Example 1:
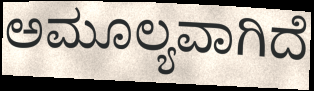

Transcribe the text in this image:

ಅಮೂಲ್ಯವಾಗಿದೆ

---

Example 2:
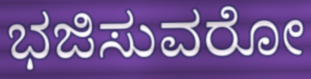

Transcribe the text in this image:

ಭಜಿಸುವರೋ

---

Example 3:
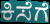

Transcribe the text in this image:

ಕಿಸೆಗೆ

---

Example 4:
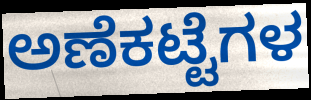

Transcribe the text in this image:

ಅಣೆಕಟ್ಟೆಗಳ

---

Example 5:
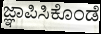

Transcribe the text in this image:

ಜ್ಞಾಪಿಸಿಕೊಂಡೆ